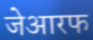
जेआरफ